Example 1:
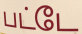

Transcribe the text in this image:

பட்டே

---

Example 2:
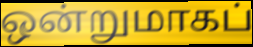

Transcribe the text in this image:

ஒன்றுமாகப்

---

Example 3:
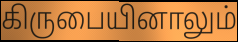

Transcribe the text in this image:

கிருபையினாலும்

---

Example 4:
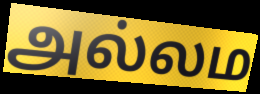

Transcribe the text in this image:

அல்லம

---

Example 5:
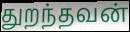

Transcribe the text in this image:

துறந்தவன்